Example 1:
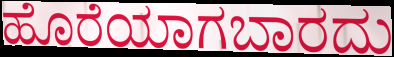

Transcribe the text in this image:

ಹೊರೆಯಾಗಬಾರದು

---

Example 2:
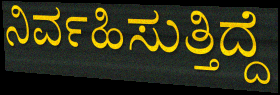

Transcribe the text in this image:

ನಿರ್ವಹಿಸುತ್ತಿದ್ದೆ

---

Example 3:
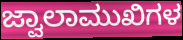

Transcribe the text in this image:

ಜ್ವಾಲಾಮುಖಿಗಳ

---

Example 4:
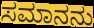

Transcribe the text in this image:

ಸಮಾನನು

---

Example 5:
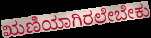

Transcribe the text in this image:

ಋಣಿಯಾಗಿರಲೇಬೇಕು